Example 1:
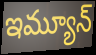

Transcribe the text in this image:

ఇమ్యూన్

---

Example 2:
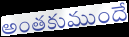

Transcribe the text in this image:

అంతకుముందే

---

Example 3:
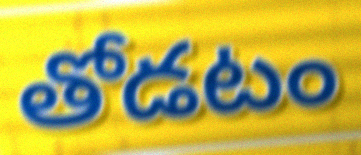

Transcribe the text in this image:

తోడటం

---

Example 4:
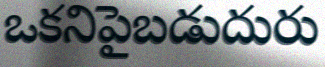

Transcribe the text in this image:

ఒకనిపైబడుదురు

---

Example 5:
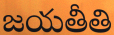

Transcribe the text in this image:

జయతీతి